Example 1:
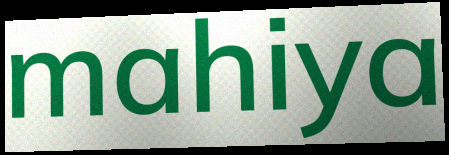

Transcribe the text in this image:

mahiya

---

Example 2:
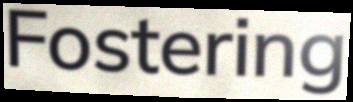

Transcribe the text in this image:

Fostering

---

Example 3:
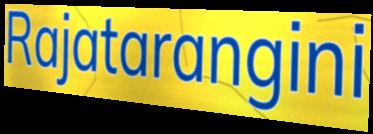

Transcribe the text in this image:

Rajatarangini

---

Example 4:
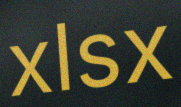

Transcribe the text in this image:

xlsx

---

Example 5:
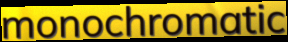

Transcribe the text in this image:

monochromatic